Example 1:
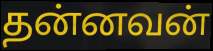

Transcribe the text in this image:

தன்னவன்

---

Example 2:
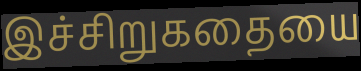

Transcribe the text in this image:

இச்சிறுகதையை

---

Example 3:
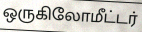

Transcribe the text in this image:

ஒருகிலோமீட்டர்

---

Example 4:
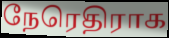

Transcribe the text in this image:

நேரெதிராக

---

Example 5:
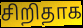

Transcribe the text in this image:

சிறிதாக